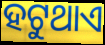
ହଟୁଥାଏ